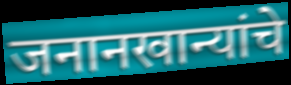
जनानखान्यांचे